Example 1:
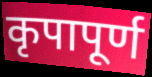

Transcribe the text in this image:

कृपापूर्ण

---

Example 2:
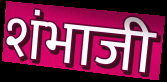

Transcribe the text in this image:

शंभाजी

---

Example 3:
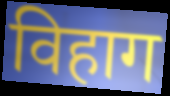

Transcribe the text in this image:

विहाग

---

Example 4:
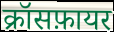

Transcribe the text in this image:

क्रॉसफ़ायर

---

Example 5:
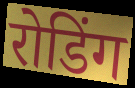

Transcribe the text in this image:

रोडिंग